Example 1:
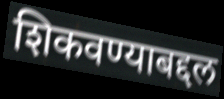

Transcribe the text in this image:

शिकवण्याबद्दल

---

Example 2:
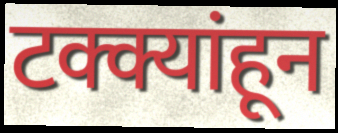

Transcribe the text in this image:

टक्क्यांहून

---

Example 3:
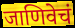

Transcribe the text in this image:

जाणिवेचं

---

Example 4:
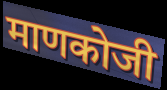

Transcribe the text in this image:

माणकोजी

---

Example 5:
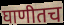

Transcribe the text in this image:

घाणीतच